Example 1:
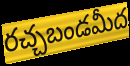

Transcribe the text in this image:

రచ్చబండమీద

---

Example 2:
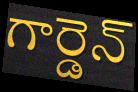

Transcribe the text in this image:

గార్డెన్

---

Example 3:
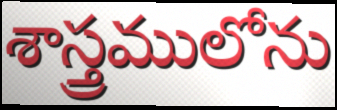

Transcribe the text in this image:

శాస్త్రములోను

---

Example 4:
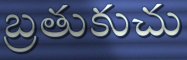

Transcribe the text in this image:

బ్రతుకుచు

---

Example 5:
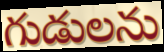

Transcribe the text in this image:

గుడులను